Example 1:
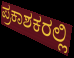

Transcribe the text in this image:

ಪ್ರಕಾಶಕರಲ್ಲಿ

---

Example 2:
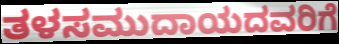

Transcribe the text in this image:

ತಳಸಮುದಾಯದವರಿಗೆ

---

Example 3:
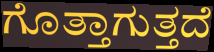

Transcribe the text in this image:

ಗೊತ್ತಾಗುತ್ತದೆ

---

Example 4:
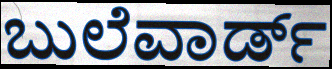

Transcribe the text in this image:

ಬುಲೆವಾರ್ಡ್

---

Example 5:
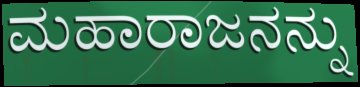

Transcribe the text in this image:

ಮಹಾರಾಜನನ್ನು